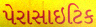
પેરાસાઇટિક